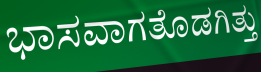
ಭಾಸವಾಗತೊಡಗಿತ್ತು